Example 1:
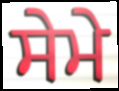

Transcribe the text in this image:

ਸੇਮੇ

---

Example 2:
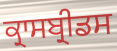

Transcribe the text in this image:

ਕ੍ਰਾਸਬ੍ਰੀਡਸ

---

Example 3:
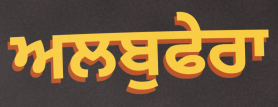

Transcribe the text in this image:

ਅਲਬੁਫੇਰਾ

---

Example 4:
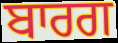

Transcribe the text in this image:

ਬਾਰਗ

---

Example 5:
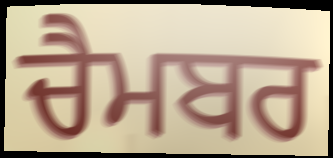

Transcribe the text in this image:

ਚੈਮਬਰ